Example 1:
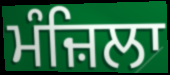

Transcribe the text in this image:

ਮੰਜ਼ਿਲਾ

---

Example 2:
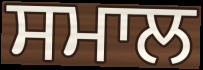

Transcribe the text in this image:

ਸਮਾਲ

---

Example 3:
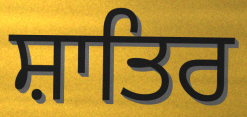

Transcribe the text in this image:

ਸ਼ਾਤਿਰ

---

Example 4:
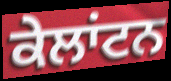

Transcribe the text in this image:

ਕੇਲਾਂਟਨ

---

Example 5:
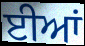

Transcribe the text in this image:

ਈਆਂ